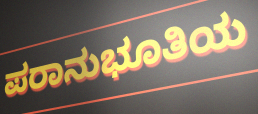
ಪರಾನುಭೂತಿಯ